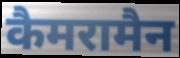
कैमरामैन